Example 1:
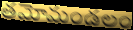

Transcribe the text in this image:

తమోమండలం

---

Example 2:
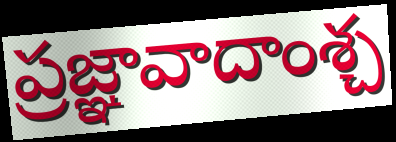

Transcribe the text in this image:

ప్రజ్ఞావాదాంశ్చ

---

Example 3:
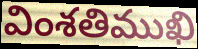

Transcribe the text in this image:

వింశతిముఖి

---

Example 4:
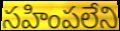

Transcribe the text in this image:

సహింపలేని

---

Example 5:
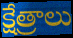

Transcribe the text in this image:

క్షేత్రాలు